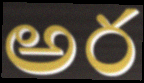
అర